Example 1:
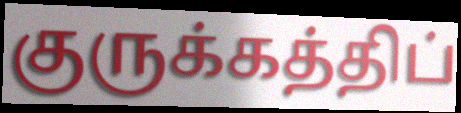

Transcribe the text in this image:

குருக்கத்திப்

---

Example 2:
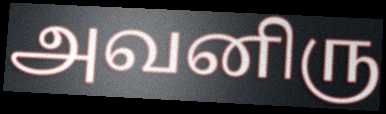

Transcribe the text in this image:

அவனிரு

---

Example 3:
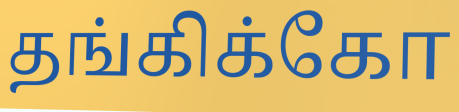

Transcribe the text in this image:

தங்கிக்கோ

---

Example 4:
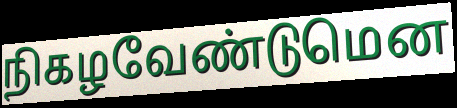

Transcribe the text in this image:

நிகழவேண்டுமென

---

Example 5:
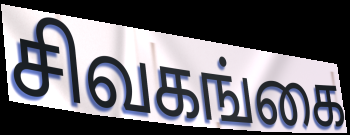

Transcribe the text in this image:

சிவகங்கை